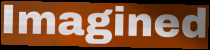
Imagined